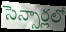
సెన్సార్లలో